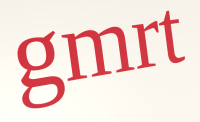
gmrt